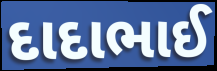
દાદાભાઈ